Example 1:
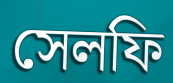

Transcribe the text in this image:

সেলফি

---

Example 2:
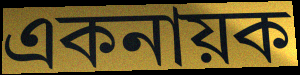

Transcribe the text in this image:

একনায়ক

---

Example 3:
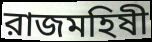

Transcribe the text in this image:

রাজমহিষী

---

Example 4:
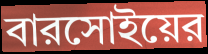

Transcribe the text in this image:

বারসোইয়ের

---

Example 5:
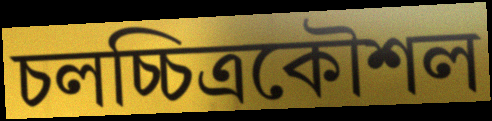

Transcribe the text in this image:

চলচ্চিত্রকৌশল